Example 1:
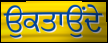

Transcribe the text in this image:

ਉਕਤਾਉਂਦੇ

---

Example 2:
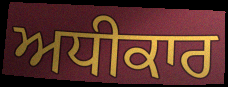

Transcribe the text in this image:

ਅਧੀਕਾਰ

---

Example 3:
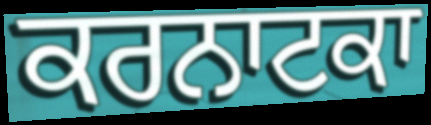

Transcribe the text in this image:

ਕਰਨਾਟਕਾ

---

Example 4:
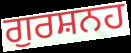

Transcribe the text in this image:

ਗੁਰਸ਼ਨਹ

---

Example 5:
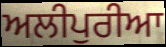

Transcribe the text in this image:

ਅਲੀਪੁਰੀਆ